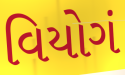
વિયોગં